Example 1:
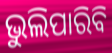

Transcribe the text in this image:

ଭୁଲିପାରିବି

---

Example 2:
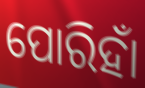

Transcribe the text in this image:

ପୋରିହାଁ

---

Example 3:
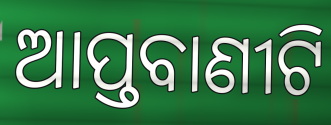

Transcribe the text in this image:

ଆପ୍ତବାଣୀଟି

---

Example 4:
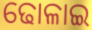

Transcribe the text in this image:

ଢୋଳାଇ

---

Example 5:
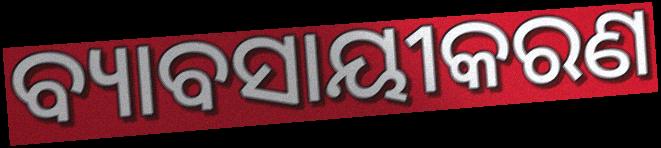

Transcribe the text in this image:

ବ୍ୟାବସାୟୀକରଣ